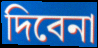
দিবেনা